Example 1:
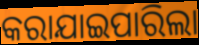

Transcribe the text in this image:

କରାଯାଇପାରିଲା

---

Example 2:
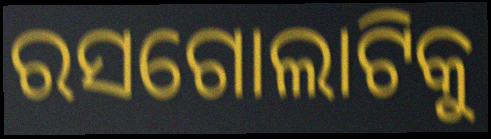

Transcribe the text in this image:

ରସଗୋଲାଟିକୁ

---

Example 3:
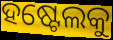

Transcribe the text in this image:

ହଷ୍ଟେଲକୁ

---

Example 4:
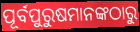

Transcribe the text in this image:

ପୂର୍ବପୁରୁଷମାନଙ୍କଠାରୁ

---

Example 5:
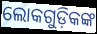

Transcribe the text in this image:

ଲୋକଗୁଡ଼ିକଙ୍କ